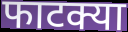
फाटक्या